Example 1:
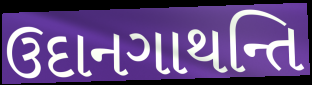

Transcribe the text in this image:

ઉદાનગાથન્તિ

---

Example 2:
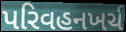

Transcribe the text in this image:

પરિવહનખર્ચ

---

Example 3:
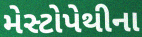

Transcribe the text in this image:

મેસ્ટોપેથીના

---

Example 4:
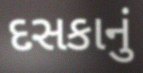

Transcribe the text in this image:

દસકાનું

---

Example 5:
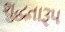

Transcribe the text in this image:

શુદ્ધતારૂપ